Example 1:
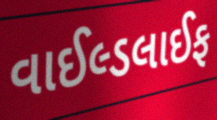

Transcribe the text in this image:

વાઈલ્ડલાઈફ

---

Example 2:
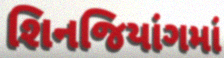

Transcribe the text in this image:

શિનજિયાંગમાં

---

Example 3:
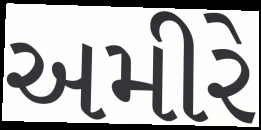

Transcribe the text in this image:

અમીરે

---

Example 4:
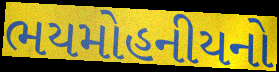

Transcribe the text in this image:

ભયમોહનીયનો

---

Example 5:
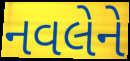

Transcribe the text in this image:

નવલેને